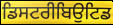
ਡਿਸਟਰੀਬਿਉਟਿਡ